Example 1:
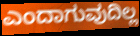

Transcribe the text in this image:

ಎಂದಾಗುವುದಿಲ್ಲ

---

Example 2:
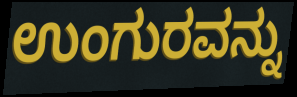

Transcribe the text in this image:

ಉಂಗುರವನ್ನು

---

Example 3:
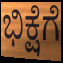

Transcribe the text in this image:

ಭಿಕ್ಷೆಗೆ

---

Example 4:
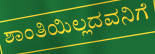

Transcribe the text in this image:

ಶಾಂತಿಯಿಲ್ಲದವನಿಗೆ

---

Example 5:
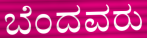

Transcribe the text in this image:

ಬೆಂದವರು